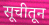
सूचीतून